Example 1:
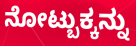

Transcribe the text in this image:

ನೋಟ್ಬುಕ್ಕನ್ನು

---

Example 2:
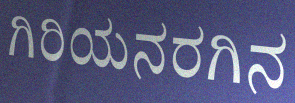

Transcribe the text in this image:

ಗಿರಿಯನರಗಿನ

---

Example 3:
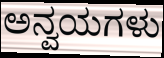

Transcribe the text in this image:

ಅನ್ವಯಗಳು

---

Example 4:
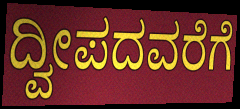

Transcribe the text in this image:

ದ್ವೀಪದವರೆಗೆ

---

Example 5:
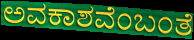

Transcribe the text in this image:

ಅವಕಾಶವೆಂಬಂತೆ